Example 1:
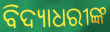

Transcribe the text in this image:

ବିଦ୍ୟାଧରୀଙ୍କ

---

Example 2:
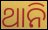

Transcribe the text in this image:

ଥାନି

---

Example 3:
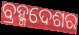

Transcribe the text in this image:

ବ୍ରହ୍ମଦେଶର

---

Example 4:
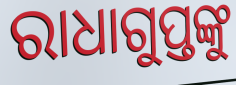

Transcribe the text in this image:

ରାଧାଗୁପ୍ତଙ୍କୁ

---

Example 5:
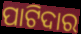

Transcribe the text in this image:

ପାଟିଦାର